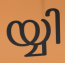
യ്യി